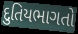
દુતિયભાગતો